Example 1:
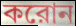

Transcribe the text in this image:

করোন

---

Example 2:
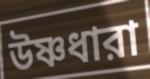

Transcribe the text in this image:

উষ্ণধারা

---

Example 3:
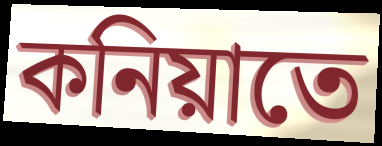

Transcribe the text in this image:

কনিয়াতে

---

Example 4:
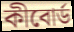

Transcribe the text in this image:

কীবোর্ড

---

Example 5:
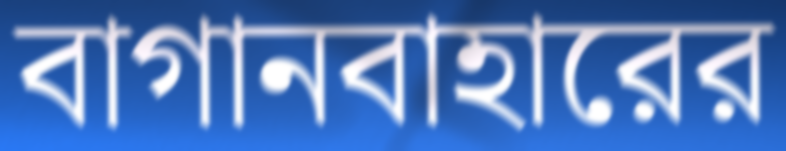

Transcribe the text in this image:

বাগানবাহারের